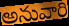
అనువారి